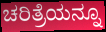
ಚರಿತ್ರೆಯನ್ನೂ